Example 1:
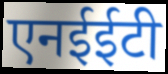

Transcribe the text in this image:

एनईईटी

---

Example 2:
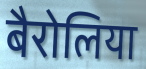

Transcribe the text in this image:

बैरोलिया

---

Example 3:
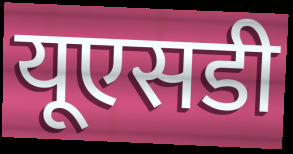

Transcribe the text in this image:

यूएसडी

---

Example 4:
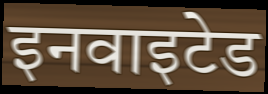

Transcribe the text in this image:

इनवाइटेड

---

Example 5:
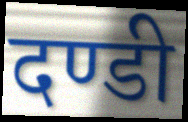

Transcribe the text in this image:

दण्डी